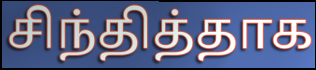
சிந்தித்தாக